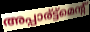
അപ്പാര്ട്ട്മെന്റ്